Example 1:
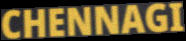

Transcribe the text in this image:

CHENNAGI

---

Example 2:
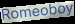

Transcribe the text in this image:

Romeoboy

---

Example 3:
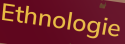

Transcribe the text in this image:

Ethnologie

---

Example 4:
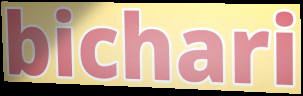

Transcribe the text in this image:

bichari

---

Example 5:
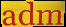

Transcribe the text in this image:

adm